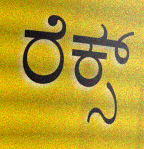
ರೆಕ್ಸ್